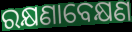
ରକ୍ଷଣାବେକ୍ଷଣ